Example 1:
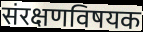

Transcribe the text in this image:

संरक्षणविषयक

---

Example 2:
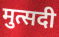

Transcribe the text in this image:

मुत्सदी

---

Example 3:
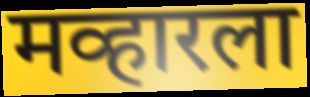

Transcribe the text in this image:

मव्हारला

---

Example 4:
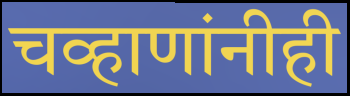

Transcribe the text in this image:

चव्हाणांनीही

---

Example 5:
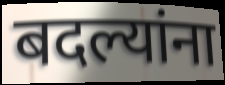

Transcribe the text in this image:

बदल्यांना